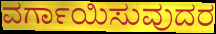
ವರ್ಗಾಯಿಸುವುದರ